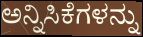
ಅನ್ನಿಸಿಕೆಗಳನ್ನು